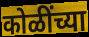
कोळींच्या